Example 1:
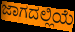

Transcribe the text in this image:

ಜಾಗದಲ್ಲಿಯೆ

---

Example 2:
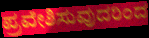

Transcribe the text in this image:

ಪ್ರವೇಶಿಸುವುದರಿಂದ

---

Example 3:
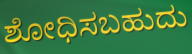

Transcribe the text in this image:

ಶೋಧಿಸಬಹುದು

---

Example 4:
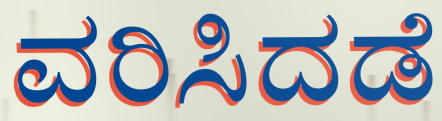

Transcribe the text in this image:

ವರಿಸಿದಡೆ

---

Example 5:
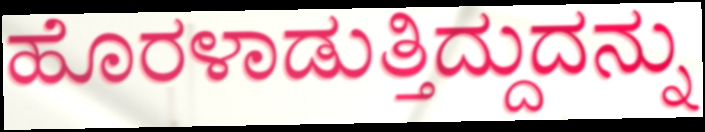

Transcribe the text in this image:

ಹೊರಳಾಡುತ್ತಿದ್ದುದನ್ನು